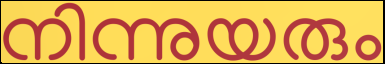
നിന്നുയരും